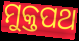
ମୁକ୍ତପଥ